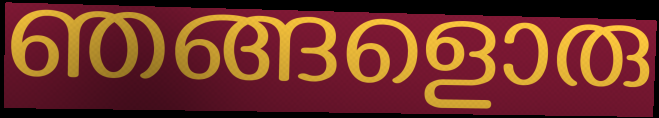
ഞങ്ങളൊരു